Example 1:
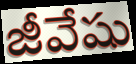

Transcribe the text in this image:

జీవేషు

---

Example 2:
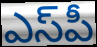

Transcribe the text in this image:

ఎస్‌పీ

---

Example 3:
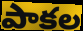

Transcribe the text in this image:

పాకల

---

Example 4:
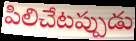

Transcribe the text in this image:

పిలిచేటప్పుడు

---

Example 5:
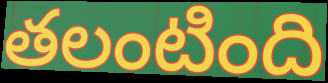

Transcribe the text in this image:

తలంటింది